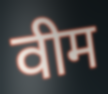
वीम